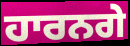
ਹਾਰਨਗੇ